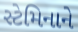
સ્ટેમિનાને